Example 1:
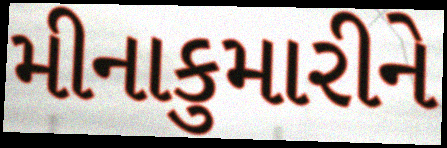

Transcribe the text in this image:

મીનાકુમારીને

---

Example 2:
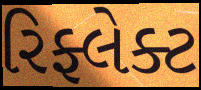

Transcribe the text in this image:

રિફ્લેક્ટ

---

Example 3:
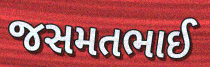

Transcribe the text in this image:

જસમતભાઈ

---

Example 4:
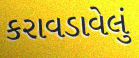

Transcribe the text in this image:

કરાવડાવેલું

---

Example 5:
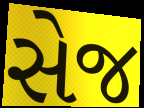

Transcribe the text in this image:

સેજ